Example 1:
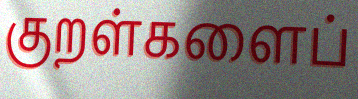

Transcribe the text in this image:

குறள்களைப்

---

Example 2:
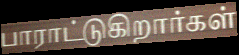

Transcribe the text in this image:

பாராட்டுகிறார்கள்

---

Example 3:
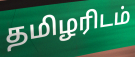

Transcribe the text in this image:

தமிழரிடம்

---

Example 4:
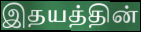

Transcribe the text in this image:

இதயத்தின்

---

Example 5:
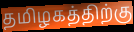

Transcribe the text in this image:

தமிழகத்திற்கு